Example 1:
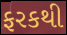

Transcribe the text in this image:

ફરકથી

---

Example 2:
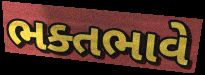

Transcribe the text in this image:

ભક્તભાવે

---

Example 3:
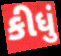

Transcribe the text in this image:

કીધું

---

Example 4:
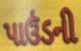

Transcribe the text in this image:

પાઉંડની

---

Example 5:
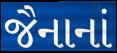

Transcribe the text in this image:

જૈનાનાં